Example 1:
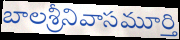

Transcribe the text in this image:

బాలశ్రీనివాసమూర్తి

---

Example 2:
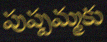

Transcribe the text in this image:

పుష్పమ్మకు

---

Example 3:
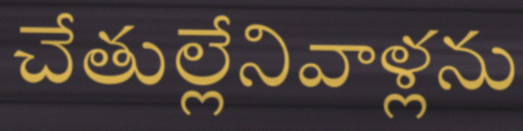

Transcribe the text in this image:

చేతుల్లేనివాళ్లను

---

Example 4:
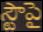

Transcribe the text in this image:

స్టౌపై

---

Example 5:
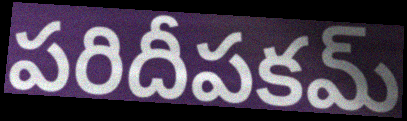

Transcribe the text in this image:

పరిదీపకమ్